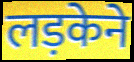
लड़केने